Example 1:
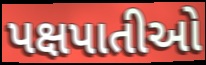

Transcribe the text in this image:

પક્ષપાતીઓ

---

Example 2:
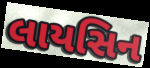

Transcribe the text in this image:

લાયસિન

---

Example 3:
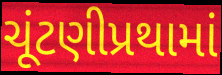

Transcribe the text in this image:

ચૂંટણીપ્રથામાં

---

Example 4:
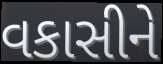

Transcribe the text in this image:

વકાસીને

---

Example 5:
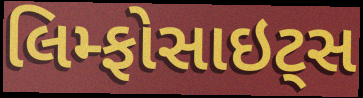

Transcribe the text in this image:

લિમ્ફોસાઇટ્સ